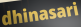
dhinasari